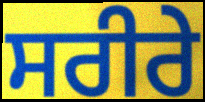
ਸਰੀਰੇ